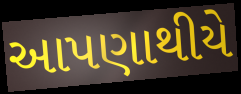
આપણાથીયે